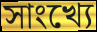
সাংখ্যে